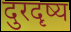
दुरदृष्य